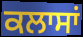
ਕਲਾਸਾਂ